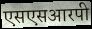
एसएसआरपी